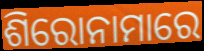
ଶିରୋନାମାରେ